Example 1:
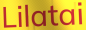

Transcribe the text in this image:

Lilatai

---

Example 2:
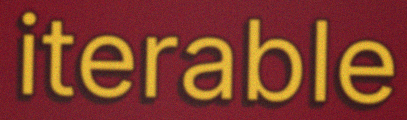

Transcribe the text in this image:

iterable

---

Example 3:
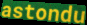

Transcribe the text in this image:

astondu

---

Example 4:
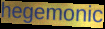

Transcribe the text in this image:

hegemonic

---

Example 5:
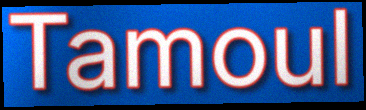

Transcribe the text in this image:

Tamoul